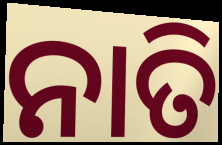
ନାତି